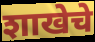
शाखेचे